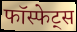
फॉस्फेट्स